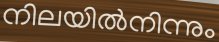
നിലയിൽനിന്നും